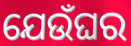
ଯେଉଁଘର